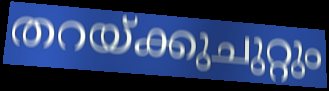
തറയ്ക്കുചുറ്റും